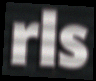
rls